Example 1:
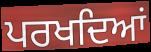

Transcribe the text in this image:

ਪਰਖਦਿਆਂ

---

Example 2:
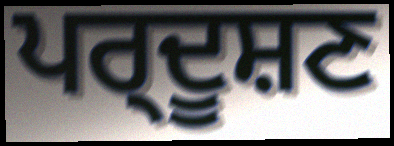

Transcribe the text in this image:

ਪਰ੍ਦੂਸ਼ਣ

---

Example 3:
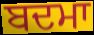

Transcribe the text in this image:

ਬਦਮਾ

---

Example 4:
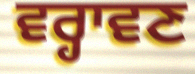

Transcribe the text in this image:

ਵਰ੍ਹਾਵਣ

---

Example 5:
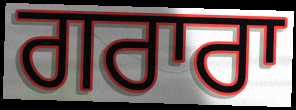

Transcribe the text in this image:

ਗਰਾਰਾ